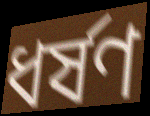
ধর্ষণ